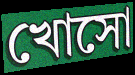
খোসো